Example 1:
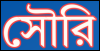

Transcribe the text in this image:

সৌরি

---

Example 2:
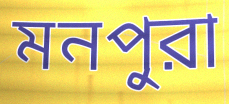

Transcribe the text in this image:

মনপুরা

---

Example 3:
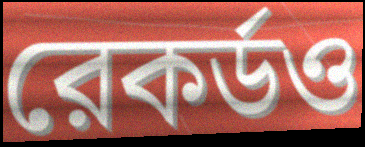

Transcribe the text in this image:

রেকর্ডও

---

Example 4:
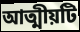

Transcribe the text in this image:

আত্মীয়টি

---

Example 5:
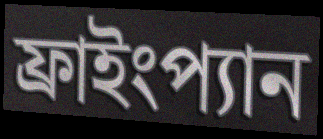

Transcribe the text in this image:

ফ্রাইংপ্যান